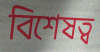
বিশেষত্ব